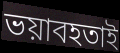
ভয়াবহতাই